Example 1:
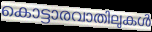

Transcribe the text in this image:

കൊട്ടാരവാതിലുകൾ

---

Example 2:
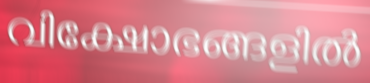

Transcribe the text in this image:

വിക്ഷോഭങ്ങളിൽ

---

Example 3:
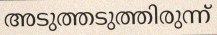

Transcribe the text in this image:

അടുത്തടുത്തിരുന്ന്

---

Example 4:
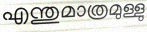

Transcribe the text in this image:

എന്തുമാത്രമുള്ളു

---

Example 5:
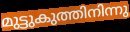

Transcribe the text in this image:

മുട്ടുകുത്തിനിന്നു